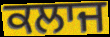
ਕਲਾਜ